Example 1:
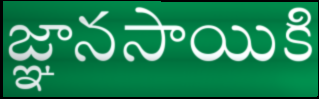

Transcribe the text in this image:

జ్ఞానసాయికి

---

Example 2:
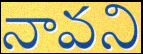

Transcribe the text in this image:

నావని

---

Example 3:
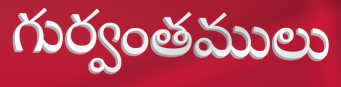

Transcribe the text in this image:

గుర్వంతములు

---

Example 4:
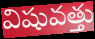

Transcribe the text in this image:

విషువత్తు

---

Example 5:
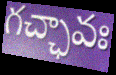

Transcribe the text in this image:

గచ్ఛావః